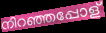
നിറഞ്ഞപ്പോള്